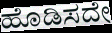
ಹೊಡಿಸದೇ